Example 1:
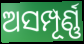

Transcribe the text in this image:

ଅସମ୍ପୂର୍ଣ୍ଣ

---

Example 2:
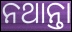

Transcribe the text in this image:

ନଥାନ୍ତା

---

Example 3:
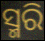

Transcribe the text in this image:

ସ୍ମରି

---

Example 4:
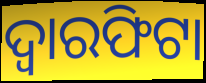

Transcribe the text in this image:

ଦ୍ୱାରଫିଟା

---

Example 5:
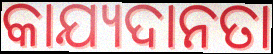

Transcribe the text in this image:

କାଯ୍ୟଦାନତା